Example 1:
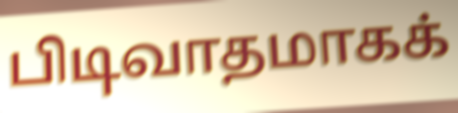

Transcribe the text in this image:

பிடிவாதமாகக்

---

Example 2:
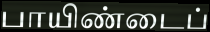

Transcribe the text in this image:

பாயிண்டைப்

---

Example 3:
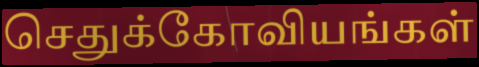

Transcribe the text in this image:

செதுக்கோவியங்கள்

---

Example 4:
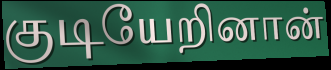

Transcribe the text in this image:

குடியேறினான்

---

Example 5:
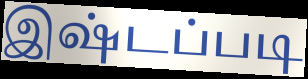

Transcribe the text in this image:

இஷ்டப்படி